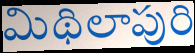
మిథిలాపురి